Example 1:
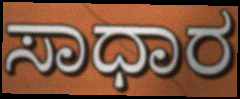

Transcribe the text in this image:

ಸಾಧಾರ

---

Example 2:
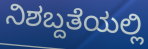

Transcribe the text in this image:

ನಿಶಬ್ದತೆಯಲ್ಲಿ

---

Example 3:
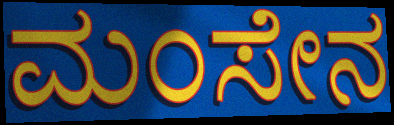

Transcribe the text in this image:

ಮಂಸೇನ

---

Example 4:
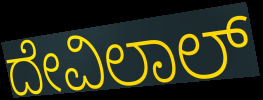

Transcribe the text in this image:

ದೇವಿಲಾಲ್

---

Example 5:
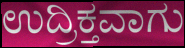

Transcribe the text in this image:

ಉದ್ರಿಕ್ತವಾಗು